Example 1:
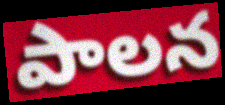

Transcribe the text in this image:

పాలన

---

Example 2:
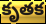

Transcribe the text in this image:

కృతక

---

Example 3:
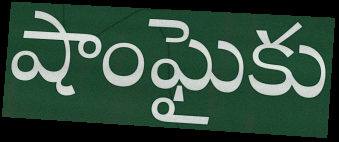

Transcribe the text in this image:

షాంఘైకు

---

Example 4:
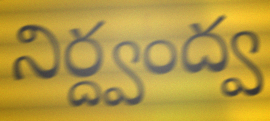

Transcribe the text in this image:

నిర్ద్వంద్వ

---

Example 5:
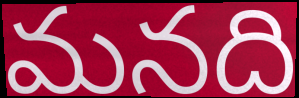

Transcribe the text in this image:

మనది